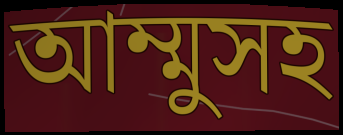
আম্মুসহ